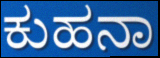
ಕುಹನಾ